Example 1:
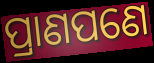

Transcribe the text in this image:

ପ୍ରାଣପଣେ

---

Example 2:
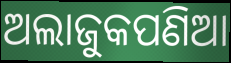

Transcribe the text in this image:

ଅଲାଜୁକପଣିଆ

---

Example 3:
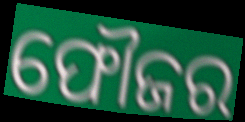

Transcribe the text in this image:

ଫୌଜର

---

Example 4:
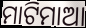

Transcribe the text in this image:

ମାଟିମାଆ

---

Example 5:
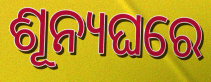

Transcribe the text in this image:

ଶୂନ୍ୟଘରେ